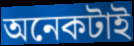
অনেকটাই